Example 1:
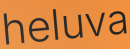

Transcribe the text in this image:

heluva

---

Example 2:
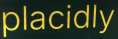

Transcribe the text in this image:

placidly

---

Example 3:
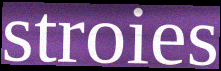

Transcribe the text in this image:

stroies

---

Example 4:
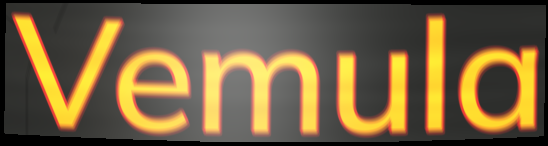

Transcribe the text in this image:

Vemula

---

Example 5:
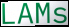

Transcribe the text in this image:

LAMs